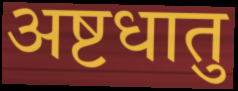
अष्टधातु